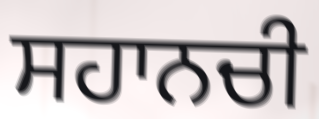
ਸਹਾਨਚੀ